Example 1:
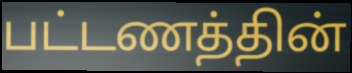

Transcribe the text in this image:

பட்டணத்தின்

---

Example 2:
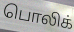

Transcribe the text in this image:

பொலிக்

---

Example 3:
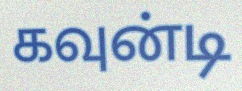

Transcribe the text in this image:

கவுன்டி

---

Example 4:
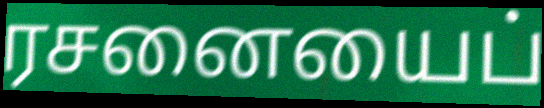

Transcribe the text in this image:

ரசனையைப்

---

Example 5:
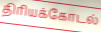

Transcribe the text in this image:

திரியக்கோடல்